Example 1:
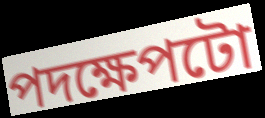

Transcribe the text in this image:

পদক্ষেপটো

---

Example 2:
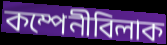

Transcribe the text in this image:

কম্পেনীবিলাক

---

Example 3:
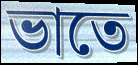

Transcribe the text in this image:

ভাতে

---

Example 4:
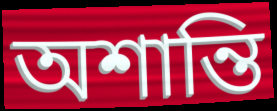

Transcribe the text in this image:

অশান্তি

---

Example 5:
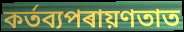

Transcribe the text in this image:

কৰ্তব্যপৰায়ণতাত